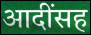
आदींसह